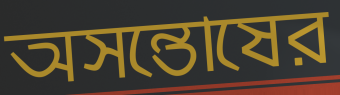
অসন্তোষের